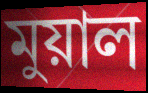
মুয়াল